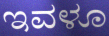
ಇವಳೂ